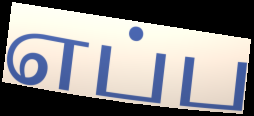
எப்ப